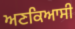
ਅਣਕਿਆਸੀ